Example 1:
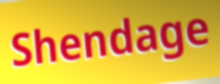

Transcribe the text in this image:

Shendage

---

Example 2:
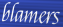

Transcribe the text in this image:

blamers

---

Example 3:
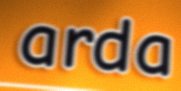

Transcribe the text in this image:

arda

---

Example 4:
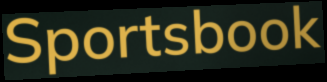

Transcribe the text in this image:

Sportsbook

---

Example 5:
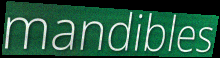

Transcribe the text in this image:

mandibles